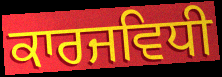
ਕਾਰਜਵਿਧੀ